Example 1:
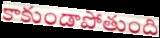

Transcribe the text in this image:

కాకుండాపోతుంది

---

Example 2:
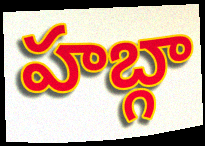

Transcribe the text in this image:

హబ్గా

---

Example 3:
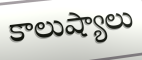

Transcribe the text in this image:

కాలుష్యాలు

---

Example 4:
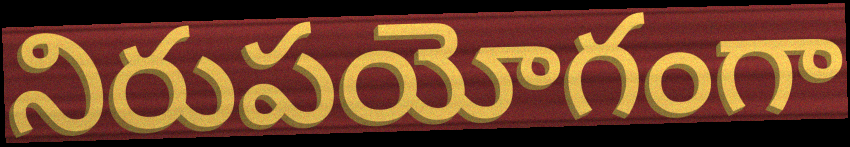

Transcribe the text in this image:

నిరుపయోగంగా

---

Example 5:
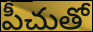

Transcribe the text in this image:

పీచుతో